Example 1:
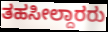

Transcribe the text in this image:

ತಹಸೀಲ್ದಾರರು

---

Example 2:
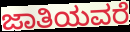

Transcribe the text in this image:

ಜಾತಿಯವರೆ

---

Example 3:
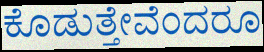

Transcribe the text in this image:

ಕೊಡುತ್ತೇವೆಂದರೂ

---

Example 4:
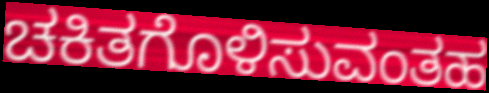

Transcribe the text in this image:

ಚಕಿತಗೊಳಿಸುವಂತಹ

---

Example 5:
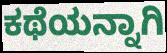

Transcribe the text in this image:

ಕಥೆಯನ್ನಾಗಿ